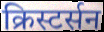
क्रिस्टर्सन